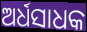
ଅର୍ଧସାଧକ